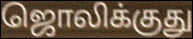
ஜொலிக்குது